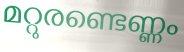
മറ്റുരണ്ടെണ്ണം